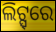
ଲିଟ୍ସ୍‌ରେ